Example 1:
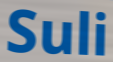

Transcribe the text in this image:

Suli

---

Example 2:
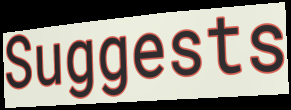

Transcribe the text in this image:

Suggests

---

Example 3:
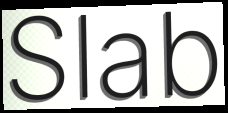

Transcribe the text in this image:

Slab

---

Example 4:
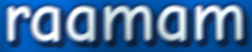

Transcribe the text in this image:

raamam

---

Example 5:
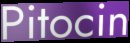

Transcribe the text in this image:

Pitocin